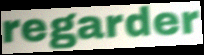
regarder